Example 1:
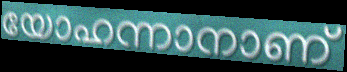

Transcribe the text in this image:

യോഹന്നാനാണ്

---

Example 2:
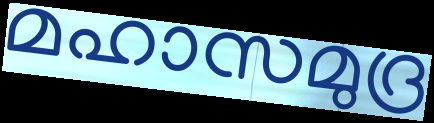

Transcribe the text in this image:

മഹാസമുദ്ര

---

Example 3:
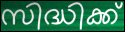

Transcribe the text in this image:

സിദ്ധിക്ക്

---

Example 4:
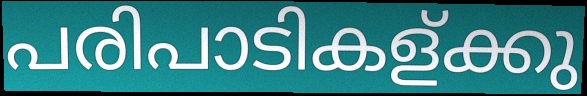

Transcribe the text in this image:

പരിപാടികള്ക്കു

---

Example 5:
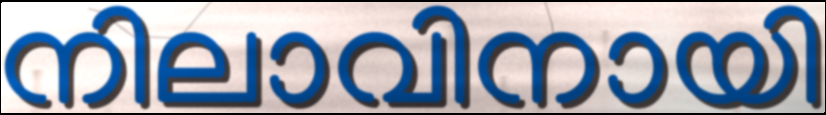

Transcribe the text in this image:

നിലാവിനായി